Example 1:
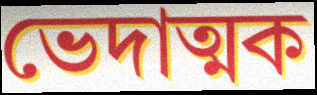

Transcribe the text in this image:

ভেদাত্মক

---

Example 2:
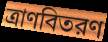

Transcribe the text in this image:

ত্রাণবিতরণ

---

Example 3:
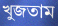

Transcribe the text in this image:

খুজতাম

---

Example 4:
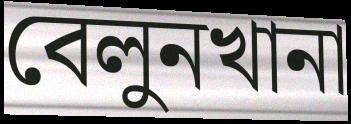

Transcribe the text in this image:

বেলুনখানা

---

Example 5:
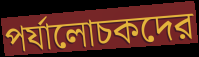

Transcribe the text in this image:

পর্যালোচকদের